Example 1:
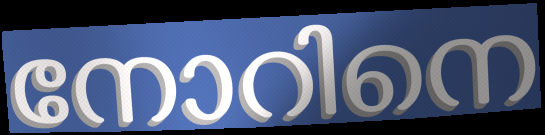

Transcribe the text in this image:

നോറിനെ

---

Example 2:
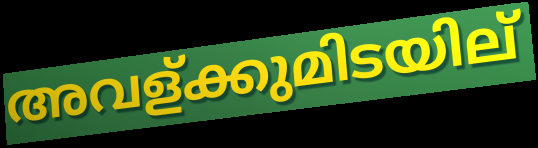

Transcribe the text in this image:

അവള്ക്കുമിടയില്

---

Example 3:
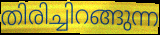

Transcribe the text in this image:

തിരിച്ചിറങ്ങുന്ന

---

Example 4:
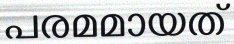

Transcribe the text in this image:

പരമമായത്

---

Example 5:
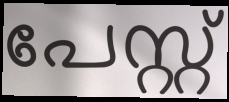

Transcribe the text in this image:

പേസ്റ്റ്